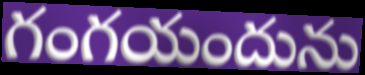
గంగయందును